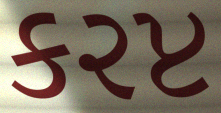
કરપ્ટ